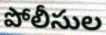
పోలీసుల